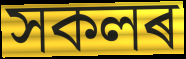
সকলৰ